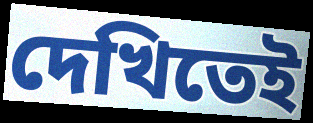
দেখিতেই